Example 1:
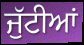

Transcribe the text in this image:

ਜੁੱਟੀਆਂ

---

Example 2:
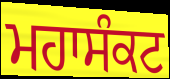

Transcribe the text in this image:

ਮਹਾਸੰਕਟ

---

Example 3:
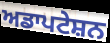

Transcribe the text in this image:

ਅਡਾਪਟੇਸ਼ਨ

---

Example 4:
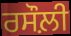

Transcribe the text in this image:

ਰਸੌਲ਼ੀ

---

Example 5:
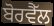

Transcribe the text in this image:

ਬੋਰਵੈੱਲ